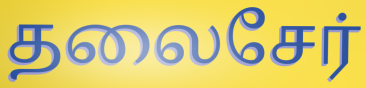
தலைசேர்